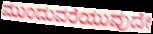
ಮುಂದುವರೆಯುವುದೇ